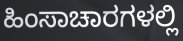
ಹಿಂಸಾಚಾರಗಳಲ್ಲಿ